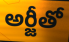
అర్జీతో